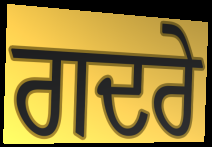
ਗਦਰੇ